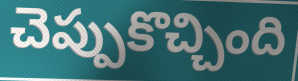
చెప్పుకొచ్చింది